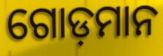
ଗୋଡ଼ମାନ